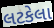
લટકેલા